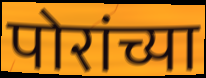
पोरांच्या